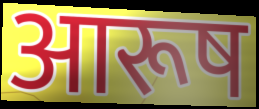
आरूष